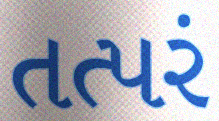
તત્પરં